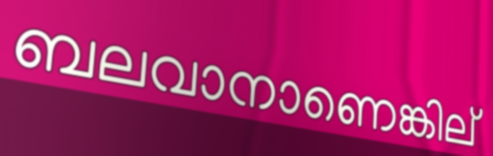
ബലവാനാണെങ്കില്